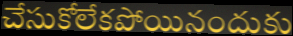
చేసుకోలేకపోయినందుకు